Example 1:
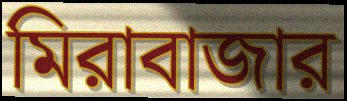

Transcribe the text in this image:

মিরাবাজার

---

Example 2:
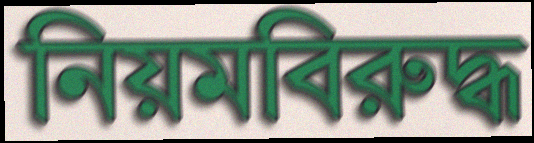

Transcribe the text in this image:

নিয়মবিরুদ্ধ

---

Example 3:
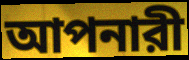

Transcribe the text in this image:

আপনারী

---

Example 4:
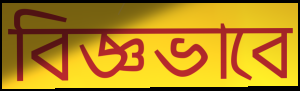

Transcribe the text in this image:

বিজ্ঞভাবে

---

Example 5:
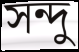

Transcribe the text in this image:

সন্দু